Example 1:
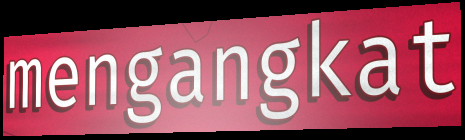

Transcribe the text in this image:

mengangkat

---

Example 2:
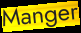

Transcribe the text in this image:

Manger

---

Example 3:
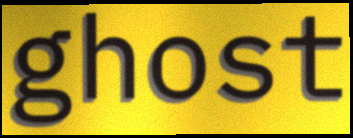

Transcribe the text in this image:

ghost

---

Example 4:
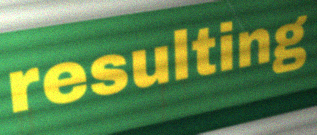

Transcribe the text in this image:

resulting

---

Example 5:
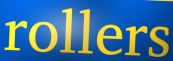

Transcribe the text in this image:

rollers